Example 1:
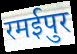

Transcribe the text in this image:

रमईपुर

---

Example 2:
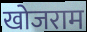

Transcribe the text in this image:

खोजराम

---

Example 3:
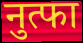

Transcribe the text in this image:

नुत्फा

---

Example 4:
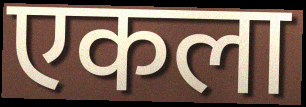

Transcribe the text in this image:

एकला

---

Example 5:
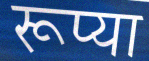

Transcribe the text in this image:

रूप्या